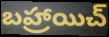
బహ్రాయిచ్